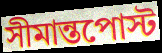
সীমান্তপোস্ট